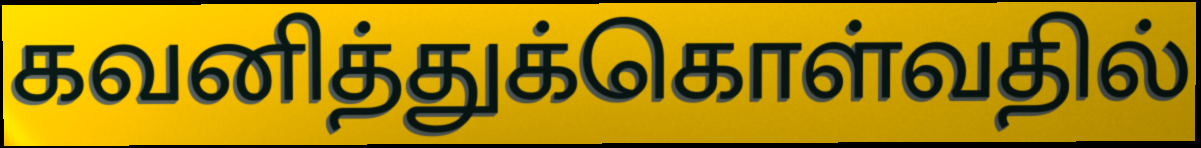
கவனித்துக்கொள்வதில்